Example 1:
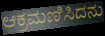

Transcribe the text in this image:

ಆಕ್ರಮಣಿಸಿದನು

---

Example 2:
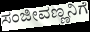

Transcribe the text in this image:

ಸಂಜೀವಣ್ಣನಿಗೆ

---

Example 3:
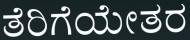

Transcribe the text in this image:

ತೆರಿಗೆಯೇತರ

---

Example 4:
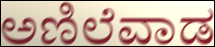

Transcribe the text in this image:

ಅಣಿಲೆವಾಡ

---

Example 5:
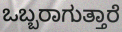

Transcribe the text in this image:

ಒಬ್ಬರಾಗುತ್ತಾರೆ